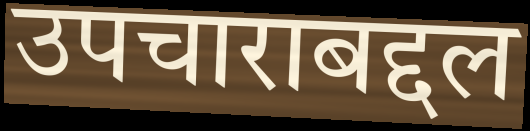
उपचाराबद्दल